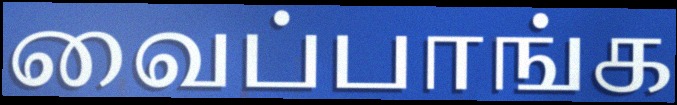
வைப்பாங்க